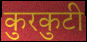
कुरकुटी